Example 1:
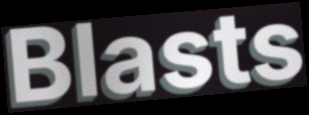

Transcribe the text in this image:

Blasts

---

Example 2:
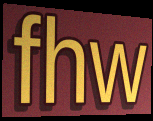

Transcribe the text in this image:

fhw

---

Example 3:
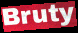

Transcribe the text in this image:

Bruty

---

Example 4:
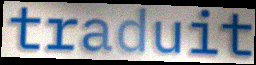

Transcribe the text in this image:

traduit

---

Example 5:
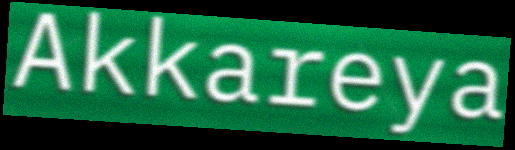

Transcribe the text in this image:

Akkareya